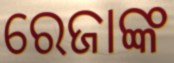
ରେଜାଙ୍କ